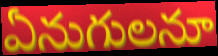
ఏనుగులనూ